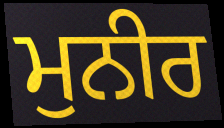
ਮੁਨੀਰ